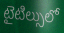
టైటిల్సులో